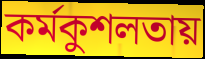
কর্মকুশলতায়